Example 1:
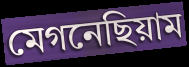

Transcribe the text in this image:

মেগনেছিয়াম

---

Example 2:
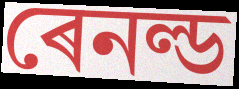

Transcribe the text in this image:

ৰেনল্ড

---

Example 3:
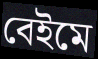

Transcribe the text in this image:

বেইমে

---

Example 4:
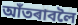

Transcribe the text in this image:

আঁতৰাবলৈ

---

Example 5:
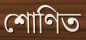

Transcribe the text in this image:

শোণিত